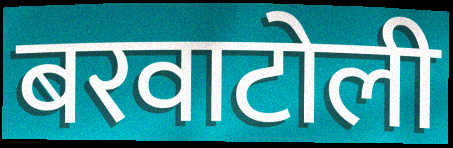
बरवाटोली